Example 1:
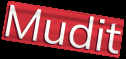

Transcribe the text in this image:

Mudit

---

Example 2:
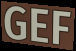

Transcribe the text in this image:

GEF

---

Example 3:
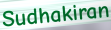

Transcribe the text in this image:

Sudhakiran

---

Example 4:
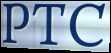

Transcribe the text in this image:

PTC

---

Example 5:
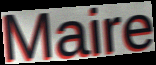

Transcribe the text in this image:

Maire